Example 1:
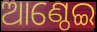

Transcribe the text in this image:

ଆଣ୍ଠେଇ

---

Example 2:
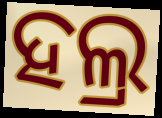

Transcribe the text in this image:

ହଲ୍ର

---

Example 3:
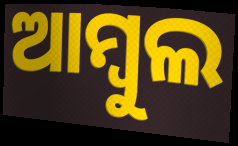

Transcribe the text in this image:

ଆମ୍ବୁଲ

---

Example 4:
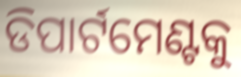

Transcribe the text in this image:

ଡିପାର୍ଟମେଣ୍ଟକୁ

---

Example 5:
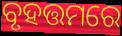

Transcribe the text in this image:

ବୃହତ୍ତମରେ